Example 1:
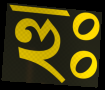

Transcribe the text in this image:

হুঃ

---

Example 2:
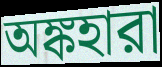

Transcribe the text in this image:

অঙ্কহারা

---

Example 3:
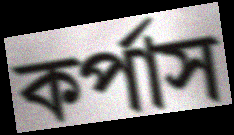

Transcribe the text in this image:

কর্পাস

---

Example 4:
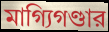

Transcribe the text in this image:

মাগ্যিগণ্ডার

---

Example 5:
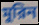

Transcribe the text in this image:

মুরিন